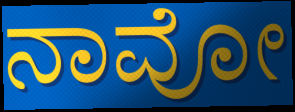
ನಾವೋ